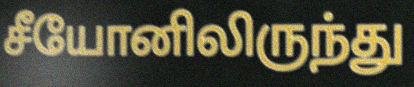
சீயோனிலிருந்து